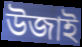
উজাই